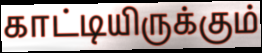
காட்டியிருக்கும்